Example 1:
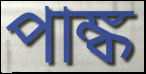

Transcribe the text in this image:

পাঙ্ক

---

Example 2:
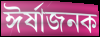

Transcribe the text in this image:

ঈর্ষাজনক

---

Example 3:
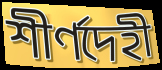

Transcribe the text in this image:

শীর্ণদেহী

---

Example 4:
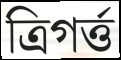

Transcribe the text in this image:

ত্রিগর্ত্ত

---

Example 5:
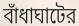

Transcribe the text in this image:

বাঁধাঘাটের